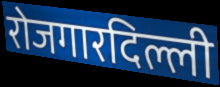
रोजगारदिल्ली